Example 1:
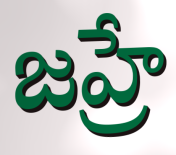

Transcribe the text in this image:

జహ్రే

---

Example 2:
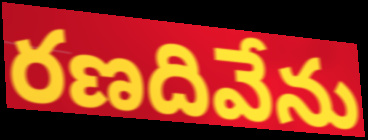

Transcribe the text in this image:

రణదివేను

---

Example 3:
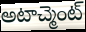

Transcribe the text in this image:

అటాచ్మెంట్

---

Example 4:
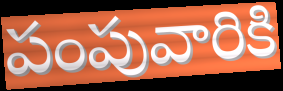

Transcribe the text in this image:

పంపువారికి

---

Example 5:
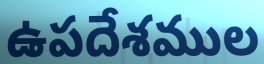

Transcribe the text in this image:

ఉపదేశముల